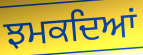
ਝਮਕਦਿਆਂ